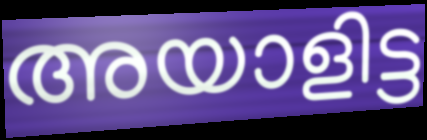
അയാളിട്ട